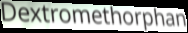
Dextromethorphan